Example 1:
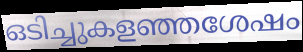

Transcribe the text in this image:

ഒടിച്ചുകളഞ്ഞശേഷം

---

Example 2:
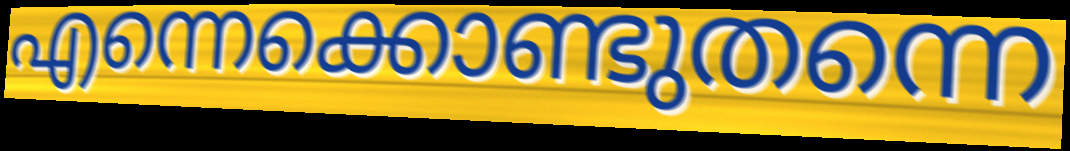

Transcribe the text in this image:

എന്നെക്കൊണ്ടുതന്നെ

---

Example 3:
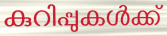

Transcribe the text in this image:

കുറിപ്പുകൾക്ക്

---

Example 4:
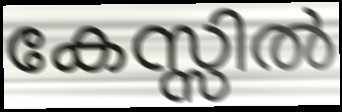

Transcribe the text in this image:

കേസ്സിൽ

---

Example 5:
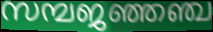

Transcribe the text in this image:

സമ്പജഞ്ഞഞ്ച